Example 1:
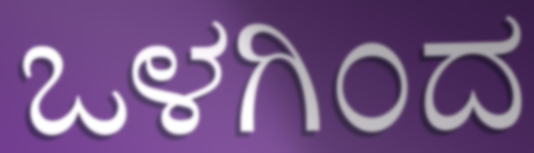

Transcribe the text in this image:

ಒಳಗಿಂದ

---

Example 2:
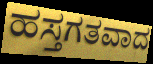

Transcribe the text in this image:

ಹಸ್ತಗತವಾದ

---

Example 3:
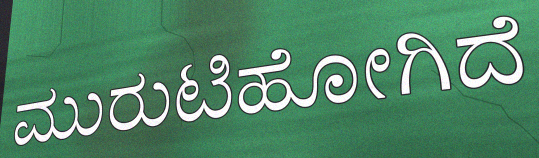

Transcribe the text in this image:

ಮುರುಟಿಹೋಗಿದೆ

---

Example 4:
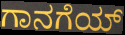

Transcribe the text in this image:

ಗಾನಗೆಯ್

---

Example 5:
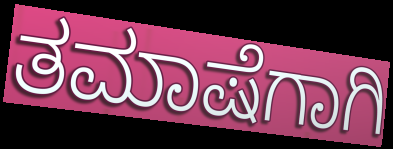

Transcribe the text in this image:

ತಮಾಷೆಗಾಗಿ